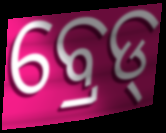
ବ୍ରେଡ୍